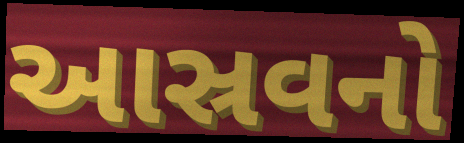
આસ્રવનો